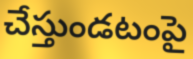
చేస్తుండటంపై